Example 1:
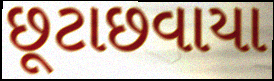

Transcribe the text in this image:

છૂટાછવાયા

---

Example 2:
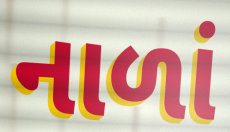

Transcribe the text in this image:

નાળાં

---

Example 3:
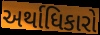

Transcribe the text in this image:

અર્થાધિકારો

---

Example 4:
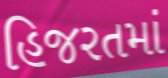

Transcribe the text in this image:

હિજરતમાં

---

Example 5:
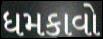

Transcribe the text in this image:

ધમકાવો